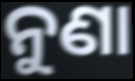
ନୁଣା